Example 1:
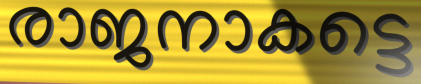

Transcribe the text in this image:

രാജനാകട്ടെ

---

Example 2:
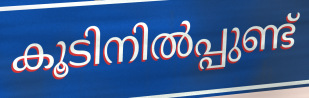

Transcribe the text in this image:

കൂടിനിൽപ്പുണ്ട്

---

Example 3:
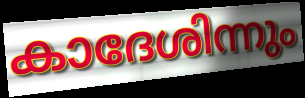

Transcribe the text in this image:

കാദേശിന്നും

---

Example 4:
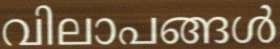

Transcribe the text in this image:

വിലാപങ്ങൾ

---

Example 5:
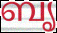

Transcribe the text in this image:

ബൃ